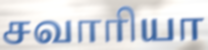
சவாரியா